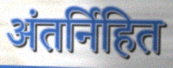
अंतर्निहित